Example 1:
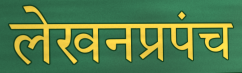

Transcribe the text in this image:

लेखनप्रपंच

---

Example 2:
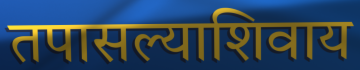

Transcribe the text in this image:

तपासल्याशिवाय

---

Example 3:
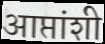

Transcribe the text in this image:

आप्तांशी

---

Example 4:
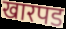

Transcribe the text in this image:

खारपड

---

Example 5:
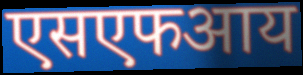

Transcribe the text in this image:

एसएफआय